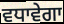
ਵਧਾਵੇਗਾ